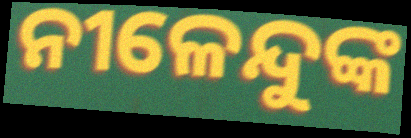
ନୀଳେନ୍ଦୁଙ୍କ